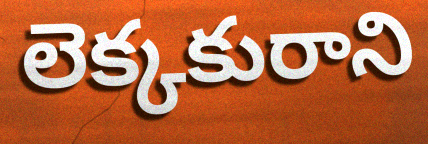
లెక్కకురాని